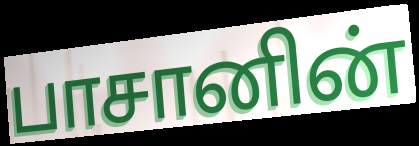
பாசானின்